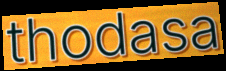
thodasa